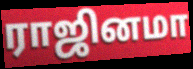
ராஜினமா